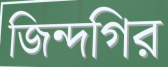
জিন্দগির